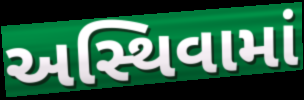
અસ્થિવામાં